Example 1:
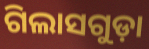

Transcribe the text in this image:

ଗିଲାସଗୁଡ଼ା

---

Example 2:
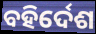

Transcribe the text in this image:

ବହିର୍ଦେଶ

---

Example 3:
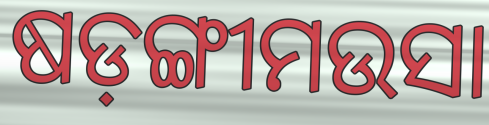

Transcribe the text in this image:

ଷଡ଼ଙ୍ଗୀମଉସା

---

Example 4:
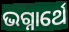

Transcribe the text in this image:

ଭଗ୍ନାର୍ଥେ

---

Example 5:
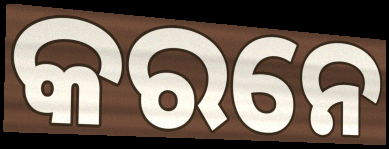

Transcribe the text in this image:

କରନେ